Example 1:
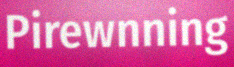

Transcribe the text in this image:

Pirewnning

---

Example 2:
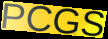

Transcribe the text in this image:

PCGS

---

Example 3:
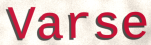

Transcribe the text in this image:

Varse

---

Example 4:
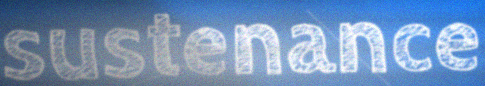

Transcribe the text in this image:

sustenance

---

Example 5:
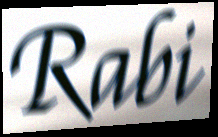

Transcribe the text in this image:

Rabi